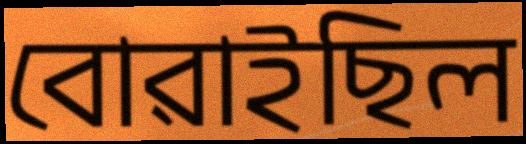
বোৱাইছিল